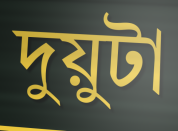
দুয়ুটা